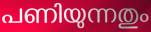
പണിയുന്നതും